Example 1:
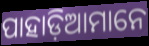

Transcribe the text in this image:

ପାହାଡ଼ିଆମାନେ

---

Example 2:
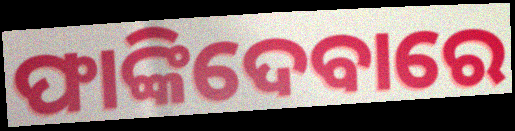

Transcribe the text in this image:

ଫାଙ୍କିଦେବାରେ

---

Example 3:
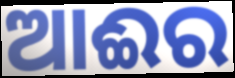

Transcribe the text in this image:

ଆଈର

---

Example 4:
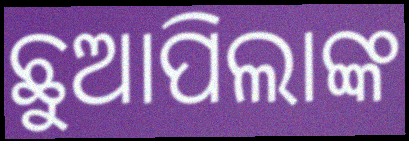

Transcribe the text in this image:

ଛୁଆପିଲାଙ୍କ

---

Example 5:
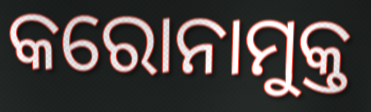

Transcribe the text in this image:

କରୋନାମୁକ୍ତ